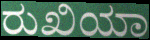
ರುಖಿಯಾ